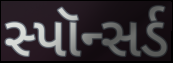
સ્પૉન્સર્ડ